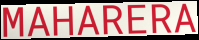
MAHARERA